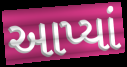
આપ્યાં